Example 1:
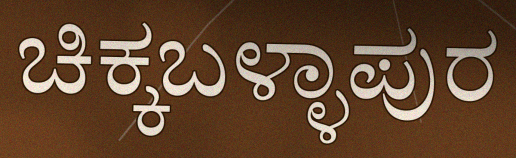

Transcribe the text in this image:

ಚಿಕ್ಕಬಳ್ಳಾಪುರ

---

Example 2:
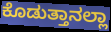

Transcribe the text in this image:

ಕೊಡುತ್ತಾನಲ್ಲಾ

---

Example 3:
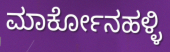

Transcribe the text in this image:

ಮಾರ್ಕೋನಹಳ್ಳಿ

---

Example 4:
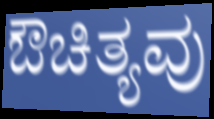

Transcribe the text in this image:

ಔಚಿತ್ಯವು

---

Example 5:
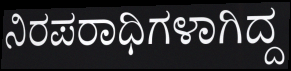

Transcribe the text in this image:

ನಿರಪರಾಧಿಗಳಾಗಿದ್ದ